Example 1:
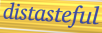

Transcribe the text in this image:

distasteful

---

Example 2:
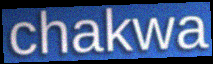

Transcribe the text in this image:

chakwa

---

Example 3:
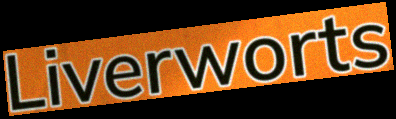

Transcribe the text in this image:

Liverworts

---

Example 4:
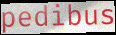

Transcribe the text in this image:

pedibus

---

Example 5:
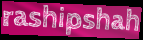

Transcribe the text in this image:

rashipshah